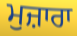
ਮੁਜ਼ਾਰਾ